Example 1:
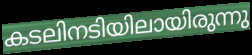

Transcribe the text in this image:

കടലിനടിയിലായിരുന്നു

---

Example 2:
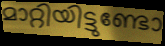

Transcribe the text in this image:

മാറ്റിയിട്ടുണ്ടോ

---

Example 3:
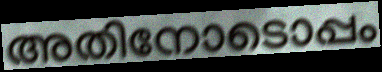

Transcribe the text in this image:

അതിനോടൊപ്പം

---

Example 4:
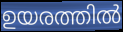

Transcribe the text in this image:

ഉയരത്തിൽ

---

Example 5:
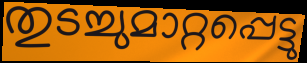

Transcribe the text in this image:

തുടച്ചുമാറ്റപ്പെട്ടു